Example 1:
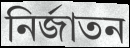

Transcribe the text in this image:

নিৰ্জাতন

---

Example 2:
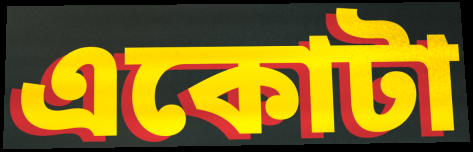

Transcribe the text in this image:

একোটা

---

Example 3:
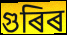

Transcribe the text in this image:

গুৰিৰ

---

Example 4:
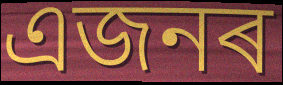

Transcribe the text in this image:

এজনৰ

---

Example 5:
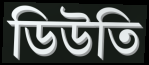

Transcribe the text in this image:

ডিউতি